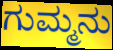
ಗುಮ್ಮನು